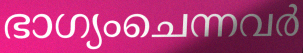
ഭാഗ്യംചെന്നവർ